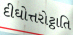
દીઘોત્તરોટ્ઠાતિ